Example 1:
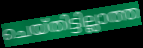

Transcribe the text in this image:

ചെയ്തിട്ടില്ലാത്ത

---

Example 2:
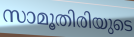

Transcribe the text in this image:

സാമൂതിരിയുടെ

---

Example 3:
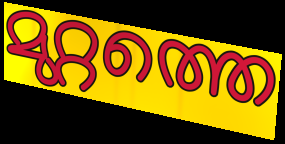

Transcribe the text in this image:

മുറ്റത്തെ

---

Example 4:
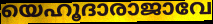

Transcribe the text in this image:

യെഹൂദാരാജാവേ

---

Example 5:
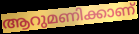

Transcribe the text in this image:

ആറുമണിക്കാണ്